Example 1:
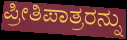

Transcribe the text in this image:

ಪ್ರೀತಿಪಾತ್ರರನ್ನು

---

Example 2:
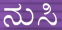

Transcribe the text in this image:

ನುಸಿ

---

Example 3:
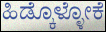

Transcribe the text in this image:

ಹಿಡ್ಕೊಳ್ಳೋಕೆ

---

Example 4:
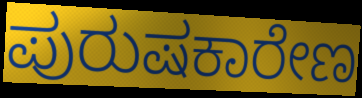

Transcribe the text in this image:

ಪುರುಷಕಾರೇಣ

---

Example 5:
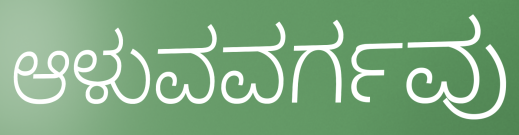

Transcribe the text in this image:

ಆಳುವವರ್ಗವು